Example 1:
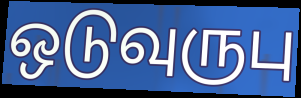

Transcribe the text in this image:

ஒடுவுருபு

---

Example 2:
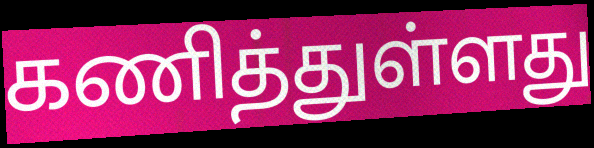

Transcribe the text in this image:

கணித்துள்ளது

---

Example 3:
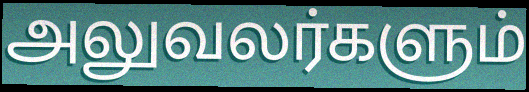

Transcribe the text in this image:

அலுவலர்களும்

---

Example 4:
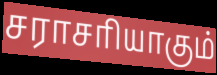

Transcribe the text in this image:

சராசரியாகும்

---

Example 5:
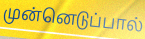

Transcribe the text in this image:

முன்னெடுப்பால்